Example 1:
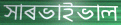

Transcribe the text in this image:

সাৰভাইভাল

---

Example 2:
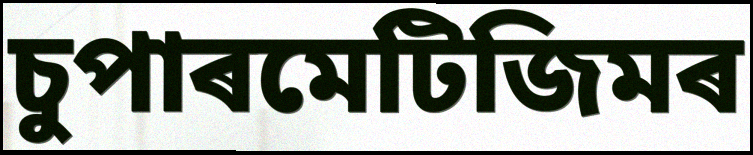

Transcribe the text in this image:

চুপাৰমেটিজিমৰ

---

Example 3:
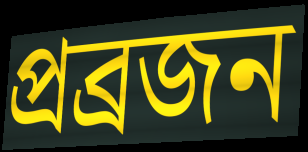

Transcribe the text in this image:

প্ৰব্ৰজন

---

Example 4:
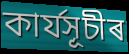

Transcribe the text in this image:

কাৰ্যসূচীৰ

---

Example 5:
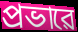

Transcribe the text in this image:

প্ৰভাৱে